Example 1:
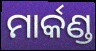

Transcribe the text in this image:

ମାର୍କଣ୍ଡ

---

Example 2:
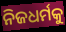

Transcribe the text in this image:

ନିଜଧର୍ମକୁ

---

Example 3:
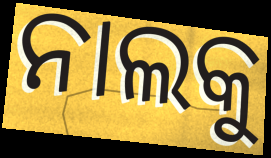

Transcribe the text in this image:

ନାଲକୁ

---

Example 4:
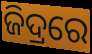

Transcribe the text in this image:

ଜିଦ୍ରରେ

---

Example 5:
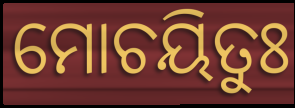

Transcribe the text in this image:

ମୋଚୟିତୁଃ